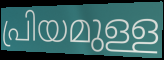
പ്രിയമുള്ള